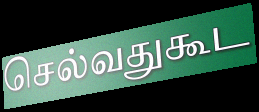
செல்வதுகூட